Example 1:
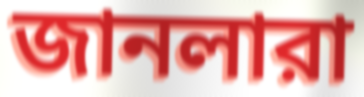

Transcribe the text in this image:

জানলারা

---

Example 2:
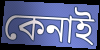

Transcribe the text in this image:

কেনাই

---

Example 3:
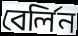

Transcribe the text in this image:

বের্লিন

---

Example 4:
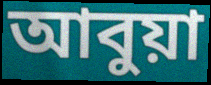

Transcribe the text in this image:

আবুয়া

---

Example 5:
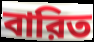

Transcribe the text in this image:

বারিত